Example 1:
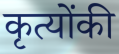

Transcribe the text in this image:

कृत्योंकी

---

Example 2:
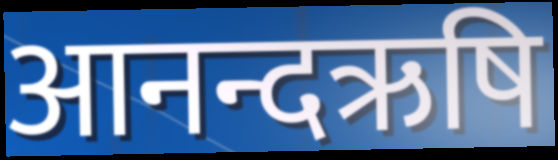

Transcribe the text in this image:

आनन्दऋषि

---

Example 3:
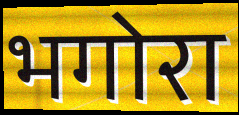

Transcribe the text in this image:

भगोरा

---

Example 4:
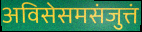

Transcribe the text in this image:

अविसेसमसंजुत्तं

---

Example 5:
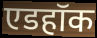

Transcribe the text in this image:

एडहॉक